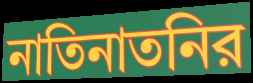
নাতিনাতনির